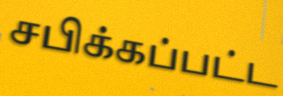
சபிக்கப்பட்ட